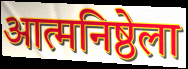
आत्मनिष्ठेला